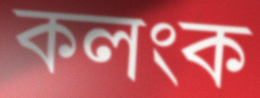
কলংক